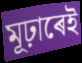
মূঢ়াৰেই